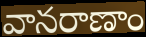
వానరాణాం